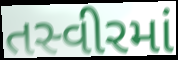
તસ્વીરમાં